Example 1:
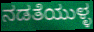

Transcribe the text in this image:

ನಡತೆಯುಳ್ಳ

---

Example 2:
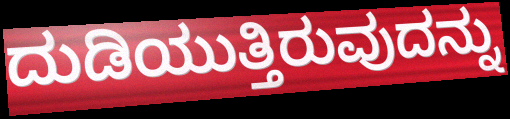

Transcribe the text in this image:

ದುಡಿಯುತ್ತಿರುವುದನ್ನು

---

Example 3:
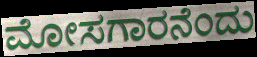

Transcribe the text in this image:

ಮೋಸಗಾರನೆಂದು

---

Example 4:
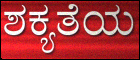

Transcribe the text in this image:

ಶಕ್ಯತೆಯ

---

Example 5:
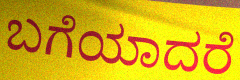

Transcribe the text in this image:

ಬಗೆಯಾದರೆ